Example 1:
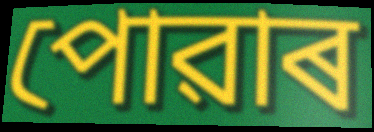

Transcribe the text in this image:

পোৱাৰ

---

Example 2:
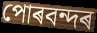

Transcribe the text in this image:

পোৰবন্দৰ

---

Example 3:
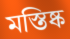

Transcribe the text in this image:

মস্তিষ্ক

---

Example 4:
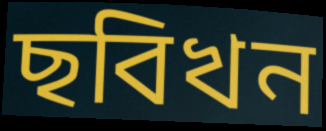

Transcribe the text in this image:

ছবিখন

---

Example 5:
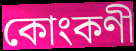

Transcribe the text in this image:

কোংকণী